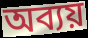
অব্যয়